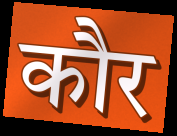
कौर